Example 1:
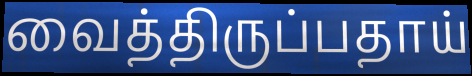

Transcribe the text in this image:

வைத்திருப்பதாய்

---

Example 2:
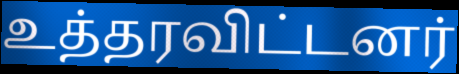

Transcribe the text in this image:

உத்தரவிட்டனர்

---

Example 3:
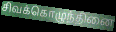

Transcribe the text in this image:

சிவக்கொழுந்தினை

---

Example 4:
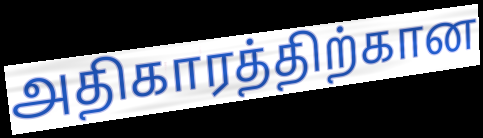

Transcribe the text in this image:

அதிகாரத்திற்கான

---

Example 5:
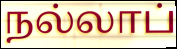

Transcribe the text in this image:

நல்லாப்